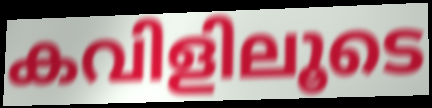
കവിളിലൂടെ